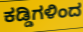
ಕಡ್ಡಿಗಳಿಂದ